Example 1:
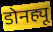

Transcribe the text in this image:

डोनह्यू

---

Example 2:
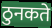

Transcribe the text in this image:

ठुनकते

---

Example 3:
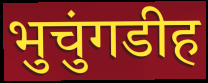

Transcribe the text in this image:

भुचुंगडीह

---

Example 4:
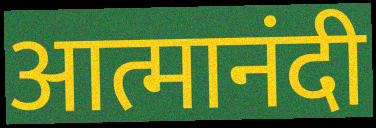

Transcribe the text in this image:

आत्मानंदी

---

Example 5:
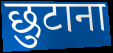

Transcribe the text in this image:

छुटाना